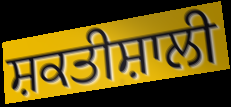
ਸ਼ਕਤੀਸ਼ਾਲੀ